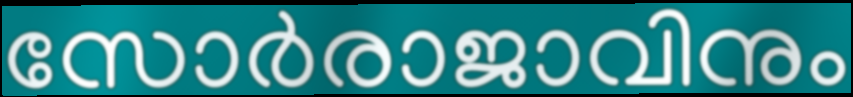
സോർരാജാവിനും